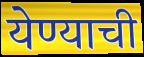
येण्याची